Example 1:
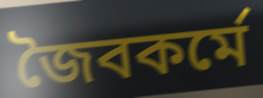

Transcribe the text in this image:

জৈবকর্মে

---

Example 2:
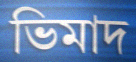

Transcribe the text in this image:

ভিমাদ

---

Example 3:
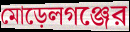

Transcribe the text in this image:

মোড়েলগঞ্জের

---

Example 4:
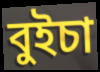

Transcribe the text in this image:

বুইচা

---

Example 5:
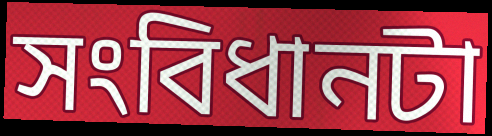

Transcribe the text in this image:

সংবিধানটা